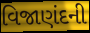
વિજાણંદની